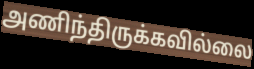
அணிந்திருக்கவில்லை